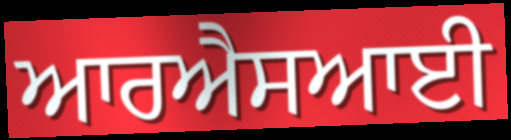
ਆਰਐਸਆਈ